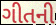
ગીતની